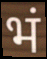
भं